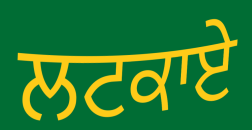
ਲਟਕਾਏ